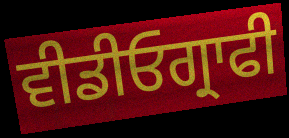
ਵੀਡੀਓਗ੍ਰਾਫੀ